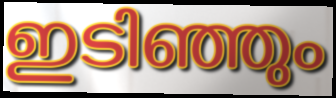
ഇടിഞ്ഞും